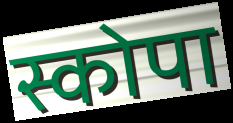
स्कोपा